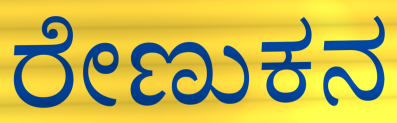
ರೇಣುಕನ